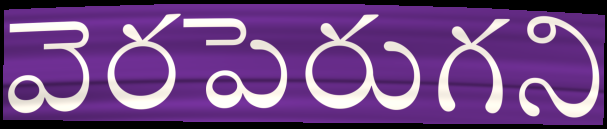
వెరపెరుగని